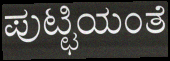
ಪುಟ್ಟಿಯಂತೆ